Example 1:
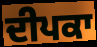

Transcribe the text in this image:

ਦੀਪਕਾ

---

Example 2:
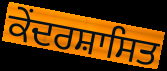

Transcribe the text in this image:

ਕੇਂਦਰਸ਼ਾਸਿਤ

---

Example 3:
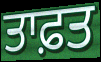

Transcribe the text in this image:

ਤਾਫ਼ਤ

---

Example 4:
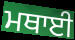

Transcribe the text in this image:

ਮਥਾਈ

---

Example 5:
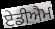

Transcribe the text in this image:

ਏਡੀਐਮ